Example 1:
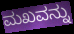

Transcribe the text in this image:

ಮಖವನ್ನು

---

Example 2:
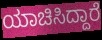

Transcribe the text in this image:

ಯಾಚಿಸಿದ್ದಾರೆ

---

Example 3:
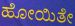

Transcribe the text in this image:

ಹೋಯಿತೇ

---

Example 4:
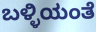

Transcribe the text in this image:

ಬಳ್ಳಿಯಂತೆ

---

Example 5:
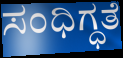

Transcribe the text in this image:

ಸಂಧಿಗ್ಧತೆ